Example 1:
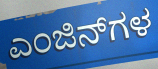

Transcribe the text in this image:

ಎಂಜಿನ್‌ಗಳ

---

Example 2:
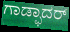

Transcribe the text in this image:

ಗಾಡ್ಫಾದರ್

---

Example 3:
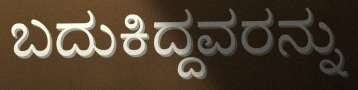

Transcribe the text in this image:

ಬದುಕಿದ್ದವರನ್ನು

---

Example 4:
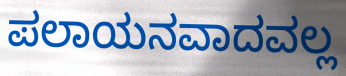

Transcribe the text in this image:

ಪಲಾಯನವಾದವಲ್ಲ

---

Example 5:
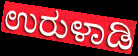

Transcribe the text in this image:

ಉರುಳಾಡಿ